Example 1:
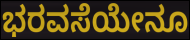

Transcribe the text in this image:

ಭರವಸೆಯೇನೂ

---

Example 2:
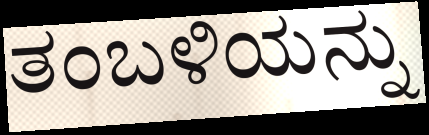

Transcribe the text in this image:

ತಂಬಳಿಯನ್ನು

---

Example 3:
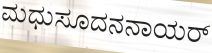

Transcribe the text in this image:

ಮಧುಸೂದನನಾಯರ್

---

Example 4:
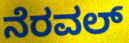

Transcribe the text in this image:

ನೆರವಲ್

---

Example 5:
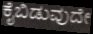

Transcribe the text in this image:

ಕೈಬಿಡುವುದೇ